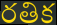
రతిక